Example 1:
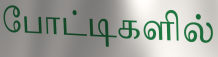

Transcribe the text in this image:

போட்டிகளில்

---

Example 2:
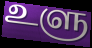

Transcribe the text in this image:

உளு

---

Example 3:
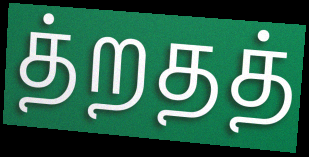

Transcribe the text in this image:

த்றதத்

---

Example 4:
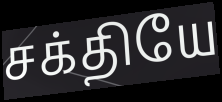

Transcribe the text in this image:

சக்தியே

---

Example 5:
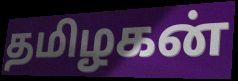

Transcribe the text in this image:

தமிழகன்